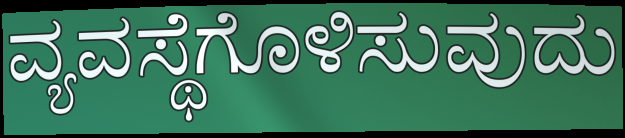
ವ್ಯವಸ್ಥೆಗೊಳಿಸುವುದು